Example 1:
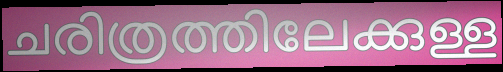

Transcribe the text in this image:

ചരിത്രത്തിലേക്കുള്ള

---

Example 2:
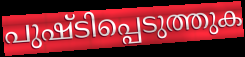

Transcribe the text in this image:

പുഷ്ടിപ്പെടുത്തുക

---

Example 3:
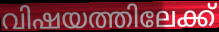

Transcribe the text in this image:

വിഷയത്തിലേക്ക്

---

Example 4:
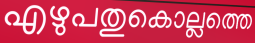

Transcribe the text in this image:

എഴുപതുകൊല്ലത്തെ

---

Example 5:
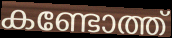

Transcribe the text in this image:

കണ്ടോത്ത്